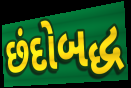
છંદોબદ્ધ